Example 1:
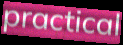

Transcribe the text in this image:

practical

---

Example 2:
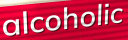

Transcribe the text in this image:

alcoholic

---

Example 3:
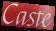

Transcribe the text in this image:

Caste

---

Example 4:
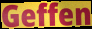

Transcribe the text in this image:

Geffen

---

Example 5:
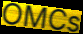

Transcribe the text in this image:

OMCs